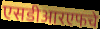
एसडीआरएफचे